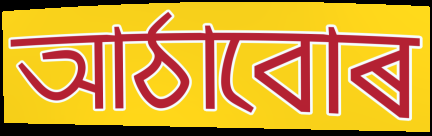
আঠাবোৰ